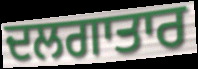
ਦਲਗਾਤਾਰ